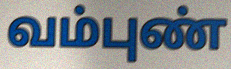
வம்புண்